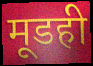
मूडही